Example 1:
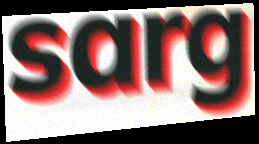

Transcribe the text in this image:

sarg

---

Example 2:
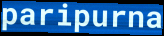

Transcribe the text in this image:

paripurna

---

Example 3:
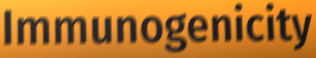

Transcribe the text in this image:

Immunogenicity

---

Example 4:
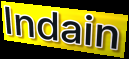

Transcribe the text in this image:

Indain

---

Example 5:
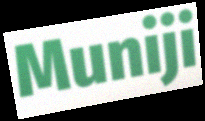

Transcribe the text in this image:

Muniji